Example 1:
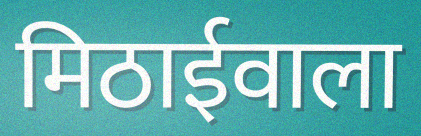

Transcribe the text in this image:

मिठाईवाला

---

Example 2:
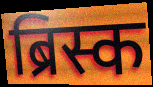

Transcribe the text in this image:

ब्रिस्क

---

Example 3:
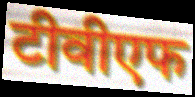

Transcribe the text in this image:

टीवीएफ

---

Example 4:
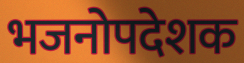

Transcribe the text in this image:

भजनोपदेशक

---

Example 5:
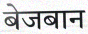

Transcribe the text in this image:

बेजबान